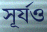
সূর্যও